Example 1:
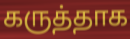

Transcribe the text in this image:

கருத்தாக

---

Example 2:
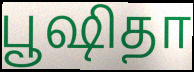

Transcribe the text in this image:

பூஷிதா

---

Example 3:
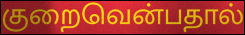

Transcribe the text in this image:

குறைவென்பதால்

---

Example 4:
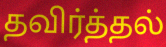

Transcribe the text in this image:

தவிர்த்தல்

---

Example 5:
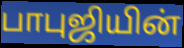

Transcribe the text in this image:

பாபுஜியின்